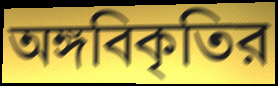
অঙ্গবিকৃতির